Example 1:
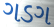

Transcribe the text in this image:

ગડગ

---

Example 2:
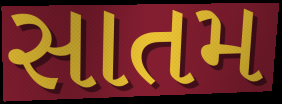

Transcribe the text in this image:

સાતમ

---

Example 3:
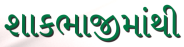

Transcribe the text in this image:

શાકભાજીમાંથી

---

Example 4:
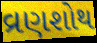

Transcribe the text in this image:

વ્રણશોથ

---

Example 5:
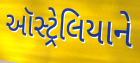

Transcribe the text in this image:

ઑસ્ટ્રેલિયાને